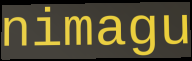
nimagu